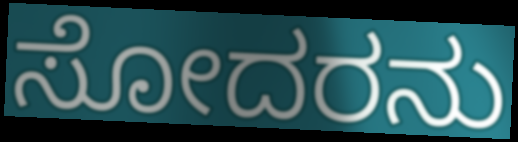
ಸೋದರನು